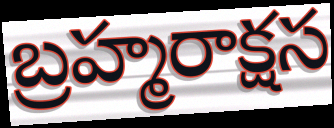
బ్రహ్మరాక్షస